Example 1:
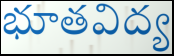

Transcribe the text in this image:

భూతవిద్య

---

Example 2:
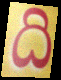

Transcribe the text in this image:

ది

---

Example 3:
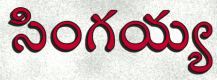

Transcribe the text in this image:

సింగయ్య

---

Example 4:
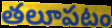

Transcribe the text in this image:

తలూపటం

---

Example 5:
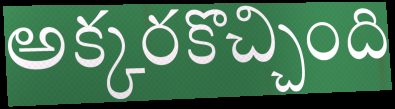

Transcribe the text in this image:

అక్కరకొచ్చింది